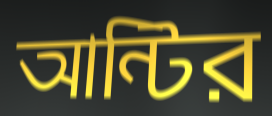
আন্টির